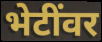
भेटींवर